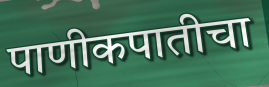
पाणीकपातीचा